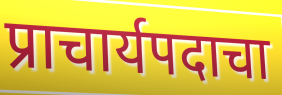
प्राचार्यपदाचा